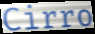
Cirro